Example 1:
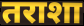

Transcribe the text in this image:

तराशा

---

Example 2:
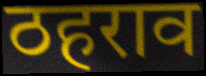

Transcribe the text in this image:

ठहराव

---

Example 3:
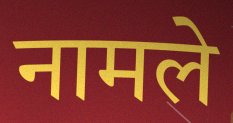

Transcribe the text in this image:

नामले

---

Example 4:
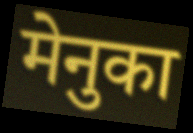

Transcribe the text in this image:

मेनुका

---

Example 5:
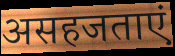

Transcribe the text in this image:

असहजताएं